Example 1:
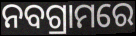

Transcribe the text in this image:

ନବଗ୍ରାମରେ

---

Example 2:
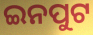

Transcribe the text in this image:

ଇନପୁଟ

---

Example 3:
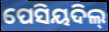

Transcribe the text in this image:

ପେସିୟଦିଲ୍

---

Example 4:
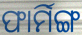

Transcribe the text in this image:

ଫାର୍ମିଙ୍ଗ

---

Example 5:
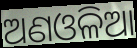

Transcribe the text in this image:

ଅଣଓଳିଆ